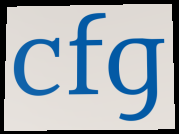
cfg